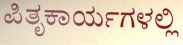
ಪಿತೃಕಾರ್ಯಗಳಲ್ಲಿ